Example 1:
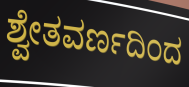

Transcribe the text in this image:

ಶ್ವೇತವರ್ಣದಿಂದ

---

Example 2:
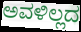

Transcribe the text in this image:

ಅವಳಿಲ್ಲದ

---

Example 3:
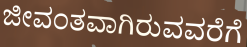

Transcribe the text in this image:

ಜೀವಂತವಾಗಿರುವವರೆಗೆ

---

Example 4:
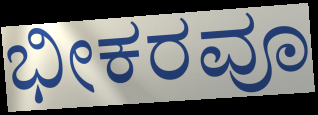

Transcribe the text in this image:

ಭೀಕರವೂ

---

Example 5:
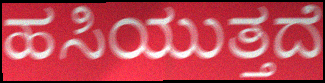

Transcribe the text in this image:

ಹಸಿಯುತ್ತದೆ